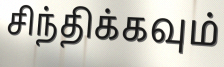
சிந்திக்கவும்